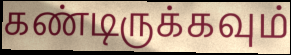
கண்டிருக்கவும்